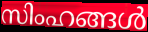
സിംഹങ്ങൾ